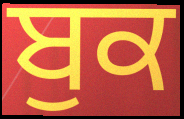
ਬੁਕ